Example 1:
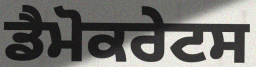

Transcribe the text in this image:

ਡੈਮੋਕਰੇਟਸ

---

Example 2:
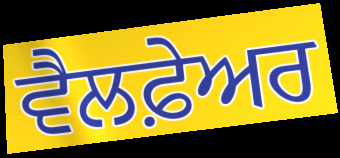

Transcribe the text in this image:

ਵੈਲਫ਼ੇਅਰ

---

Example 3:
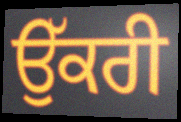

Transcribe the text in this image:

ਉੱਕਰੀ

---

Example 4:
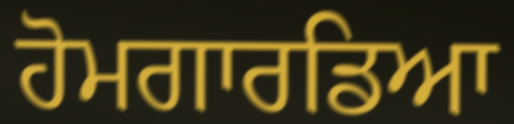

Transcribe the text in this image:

ਹੋਮਗਾਰਡਿਆ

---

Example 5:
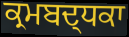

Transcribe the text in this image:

ਕ੍ਰਮਬਦ੍ਧਕਾ